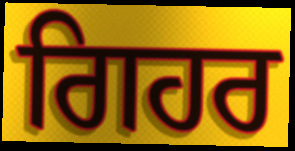
ਗਿਹਰ